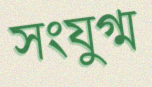
সংযুগ্ম